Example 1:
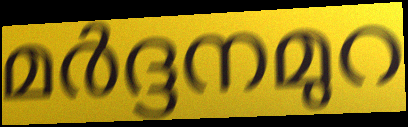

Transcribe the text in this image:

മർദ്ദനമുറ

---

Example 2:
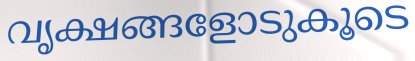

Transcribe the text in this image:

വൃക്ഷങ്ങളോടുകൂടെ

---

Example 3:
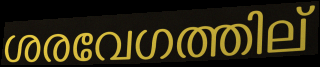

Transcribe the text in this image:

ശരവേഗത്തില്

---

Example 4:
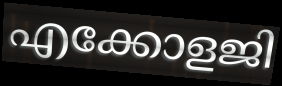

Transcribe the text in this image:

എക്കോളജി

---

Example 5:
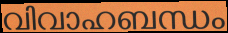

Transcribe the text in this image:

വിവാഹബന്ധം